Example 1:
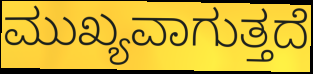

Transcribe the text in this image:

ಮುಖ್ಯವಾಗುತ್ತದೆ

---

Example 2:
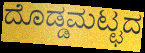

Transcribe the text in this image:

ದೊಡ್ಡಮಟ್ಟದ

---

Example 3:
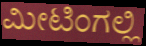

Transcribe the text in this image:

ಮೀಟಿಂಗಲ್ಲಿ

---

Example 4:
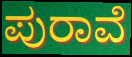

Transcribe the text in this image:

ಪುರಾವೆ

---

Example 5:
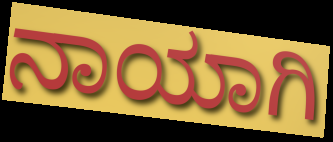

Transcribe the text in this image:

ನಾಯಾಗಿ